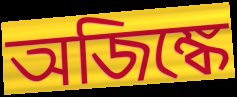
অজিঙ্কে